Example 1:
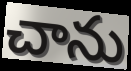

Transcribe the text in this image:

చాను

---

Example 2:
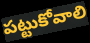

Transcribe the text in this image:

పట్టుకోవాలి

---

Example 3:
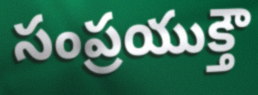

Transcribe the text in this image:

సంప్రయుక్తౌ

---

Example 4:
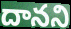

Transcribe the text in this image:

దానని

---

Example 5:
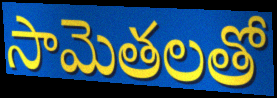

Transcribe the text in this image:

సామెతలతో